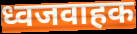
ध्वजवाहक